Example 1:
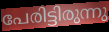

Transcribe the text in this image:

പേരിട്ടിരുന്നു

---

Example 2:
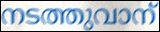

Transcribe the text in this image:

നടത്തുവാന്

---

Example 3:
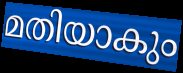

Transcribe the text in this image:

മതിയാകും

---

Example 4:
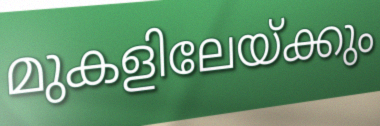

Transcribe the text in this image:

മുകളിലേയ്ക്കും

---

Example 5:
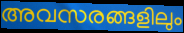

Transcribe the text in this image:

അവസരങ്ങളിലും